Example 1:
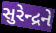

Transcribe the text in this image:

સુરેન્દ્રને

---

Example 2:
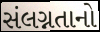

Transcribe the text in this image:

સંલગ્નતાનો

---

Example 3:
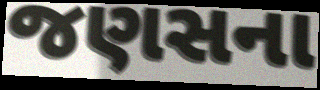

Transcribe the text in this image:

જણસના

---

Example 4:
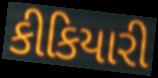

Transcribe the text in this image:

કીકિયારી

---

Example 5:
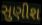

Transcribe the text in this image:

સુણીશ